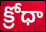
క్రోధా